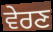
ਵੇਰਣ